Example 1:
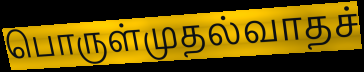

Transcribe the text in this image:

பொருள்முதல்வாதச்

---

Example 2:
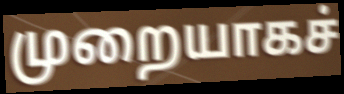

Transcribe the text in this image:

முறையாகச்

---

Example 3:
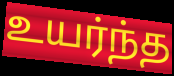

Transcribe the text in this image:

உயர்ந்த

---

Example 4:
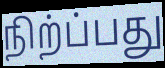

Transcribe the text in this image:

நிற்ப்பது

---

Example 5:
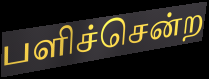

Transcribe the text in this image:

பளிச்சென்ற